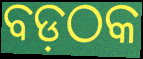
ବଡ଼ଠକ